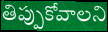
తిప్పుకోవాలని